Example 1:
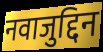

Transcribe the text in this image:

नवाजुद्दिन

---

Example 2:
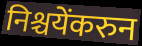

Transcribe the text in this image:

निश्चयेंकरुन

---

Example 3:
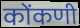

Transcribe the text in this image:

कोंकणी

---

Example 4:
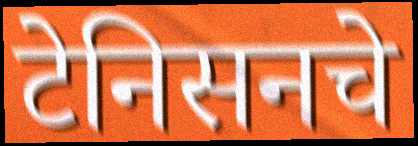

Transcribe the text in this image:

टेनिसनचे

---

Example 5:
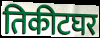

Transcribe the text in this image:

तिकीटघर